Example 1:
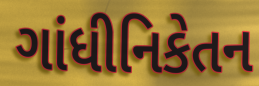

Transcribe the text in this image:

ગાંધીનિકેતન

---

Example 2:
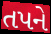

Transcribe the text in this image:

તપને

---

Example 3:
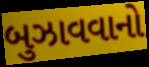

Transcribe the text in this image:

બુઝાવવાનો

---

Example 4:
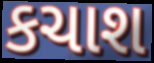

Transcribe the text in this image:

કચાશ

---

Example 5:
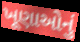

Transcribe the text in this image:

ખૂણાઓનું